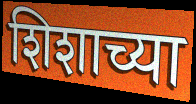
शिशाच्या